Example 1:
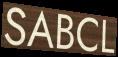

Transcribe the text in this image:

SABCL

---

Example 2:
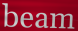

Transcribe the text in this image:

beam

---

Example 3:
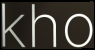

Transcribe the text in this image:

kho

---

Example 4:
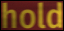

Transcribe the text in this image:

hold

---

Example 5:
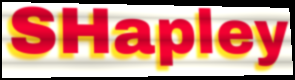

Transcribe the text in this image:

SHapley